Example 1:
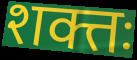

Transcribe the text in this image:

शक्तः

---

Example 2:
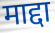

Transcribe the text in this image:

माद्दा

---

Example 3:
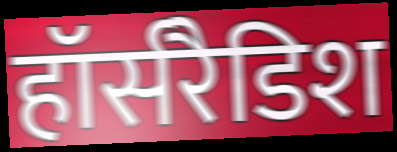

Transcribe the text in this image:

हॉर्सरैडिश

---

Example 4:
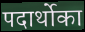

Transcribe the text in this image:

पदार्थोका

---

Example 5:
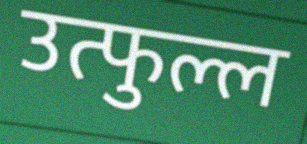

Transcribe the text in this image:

उत्फुल्ल